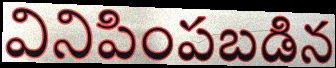
వినిపింపబడిన